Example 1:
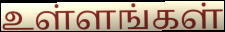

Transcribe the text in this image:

உள்ளங்கள்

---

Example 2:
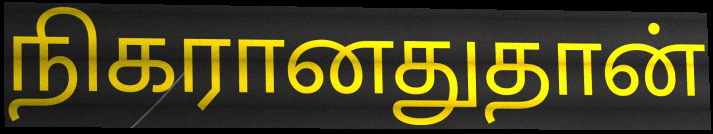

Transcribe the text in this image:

நிகரானதுதான்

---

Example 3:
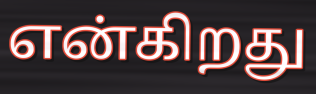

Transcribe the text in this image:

என்கிறது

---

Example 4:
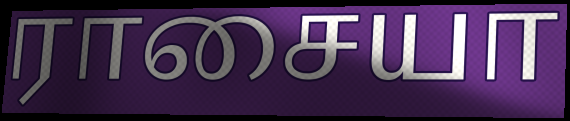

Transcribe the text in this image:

ராசையா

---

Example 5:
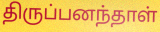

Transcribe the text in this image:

திருப்பனந்தாள்